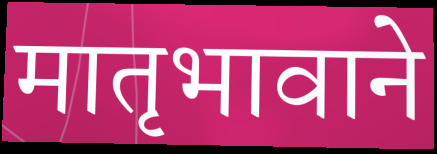
मातृभावाने